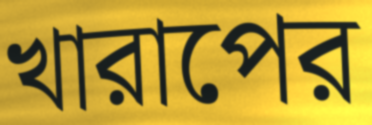
খারাপের